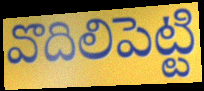
వొదిలిపెట్టి